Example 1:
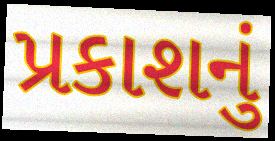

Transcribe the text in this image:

પ્રકાશનું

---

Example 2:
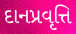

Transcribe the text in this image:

દાનપ્રવૃત્તિ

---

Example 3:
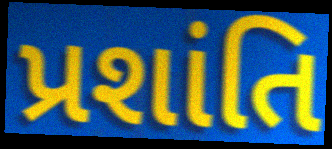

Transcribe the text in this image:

પ્રશાંતિ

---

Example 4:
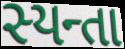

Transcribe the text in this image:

સ્યન્તા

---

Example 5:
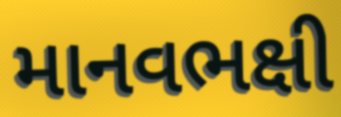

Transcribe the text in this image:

માનવભક્ષી